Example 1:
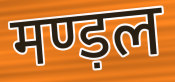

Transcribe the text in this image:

मण्ड़ल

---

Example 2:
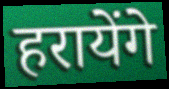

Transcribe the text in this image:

हरायेंगे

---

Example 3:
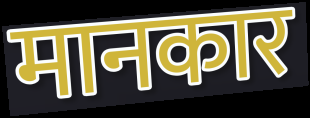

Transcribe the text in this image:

मानकार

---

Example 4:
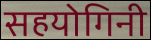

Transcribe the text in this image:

सहयोगिनी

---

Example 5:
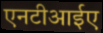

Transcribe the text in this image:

एनटीआईए